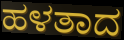
ಹಳತಾದ